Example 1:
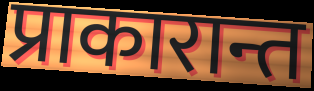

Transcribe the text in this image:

प्राकारान्त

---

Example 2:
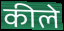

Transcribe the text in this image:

कीले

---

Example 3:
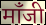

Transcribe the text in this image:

मॉंजी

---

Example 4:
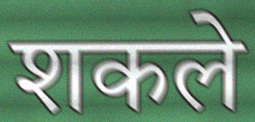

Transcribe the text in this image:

शकले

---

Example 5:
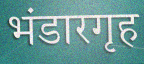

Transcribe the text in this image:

भंडारगृह